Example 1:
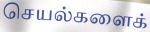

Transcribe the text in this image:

செயல்களைக்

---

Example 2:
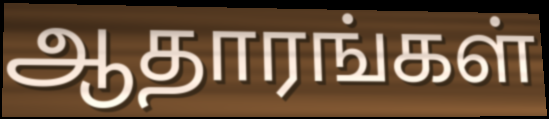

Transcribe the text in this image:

ஆதாரங்கள்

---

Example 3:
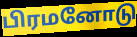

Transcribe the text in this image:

பிரமனோடு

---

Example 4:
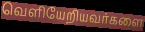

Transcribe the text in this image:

வெளியேறியவர்களை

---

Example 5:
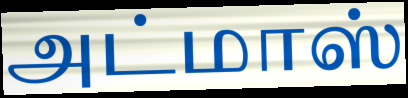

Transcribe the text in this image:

அட்மாஸ்